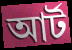
আৰ্ট